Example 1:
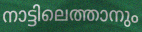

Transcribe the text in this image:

നാട്ടിലെത്താനും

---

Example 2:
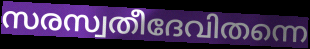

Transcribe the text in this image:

സരസ്വതീദേവിതന്നെ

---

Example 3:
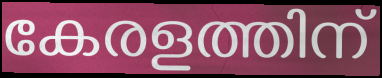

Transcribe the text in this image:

കേരളത്തിന്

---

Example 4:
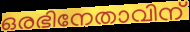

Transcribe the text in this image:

ഒരഭിനേതാവിന്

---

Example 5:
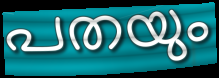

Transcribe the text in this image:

പതയും